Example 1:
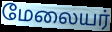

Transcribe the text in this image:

மேலையர்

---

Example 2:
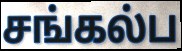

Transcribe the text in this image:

சங்கல்ப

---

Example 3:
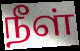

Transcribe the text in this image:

நீள்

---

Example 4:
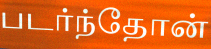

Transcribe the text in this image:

படர்ந்தோன்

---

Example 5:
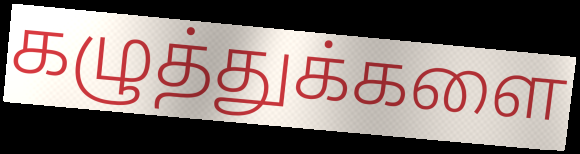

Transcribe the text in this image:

கழுத்துக்களை